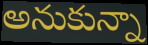
అనుకున్నా